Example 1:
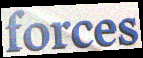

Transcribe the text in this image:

forces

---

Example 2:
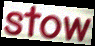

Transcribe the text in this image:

stow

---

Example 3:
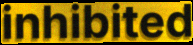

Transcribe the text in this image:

inhibited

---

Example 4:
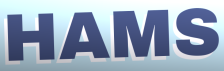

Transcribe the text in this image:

HAMS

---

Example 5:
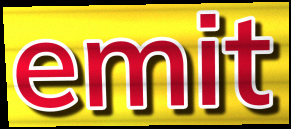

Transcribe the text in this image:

emit